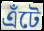
এঁটে